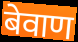
बेवाण